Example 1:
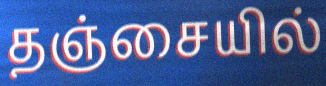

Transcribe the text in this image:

தஞ்சையில்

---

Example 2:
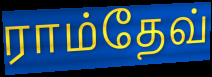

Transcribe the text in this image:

ராம்தேவ்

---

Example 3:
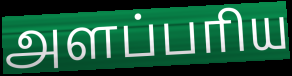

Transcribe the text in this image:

அளப்பரிய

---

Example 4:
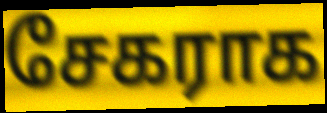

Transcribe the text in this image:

சேகராக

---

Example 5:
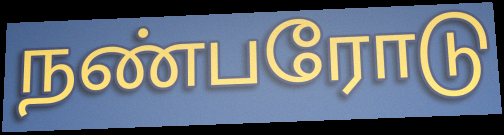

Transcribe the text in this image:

நண்பரோடு